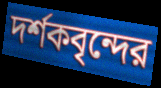
দর্শকবৃন্দের